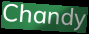
Chandy